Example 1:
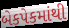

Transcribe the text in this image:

બેકપેકમાંથી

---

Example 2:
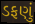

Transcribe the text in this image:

ડફણું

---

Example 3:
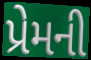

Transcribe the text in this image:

પ્રેમની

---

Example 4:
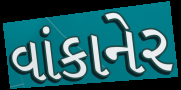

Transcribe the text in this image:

વાંકાનેર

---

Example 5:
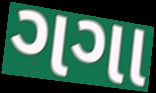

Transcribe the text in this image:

ગગા